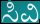
ಸಿವಿ